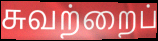
சுவற்றைப்